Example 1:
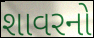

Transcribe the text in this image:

શાવરનો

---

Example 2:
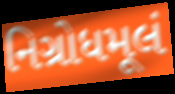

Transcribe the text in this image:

નિગ્રોધમૂલં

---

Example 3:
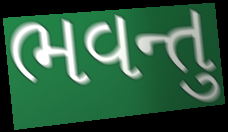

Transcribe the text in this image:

ભવન્તુ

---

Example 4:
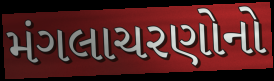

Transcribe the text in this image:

મંગલાચરણોનો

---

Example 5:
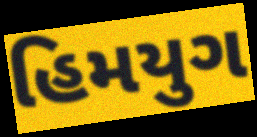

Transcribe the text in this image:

હિમયુગ